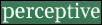
perceptive